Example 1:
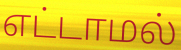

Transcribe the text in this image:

எட்டாமல்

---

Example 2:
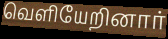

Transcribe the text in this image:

வெளியேறினார்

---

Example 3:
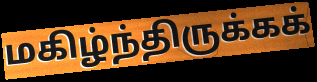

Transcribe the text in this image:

மகிழ்ந்திருக்கக்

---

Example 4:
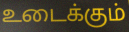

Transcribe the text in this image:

உடைக்கும்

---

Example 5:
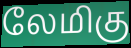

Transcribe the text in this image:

லேமிகு